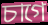
চাগে